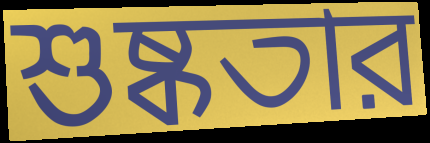
শুষ্কতার